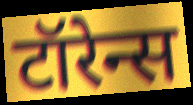
टॉरेन्स